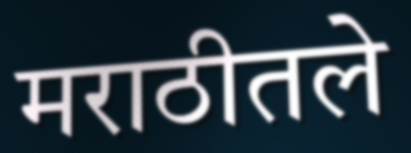
मराठीतले